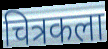
चित्रकला